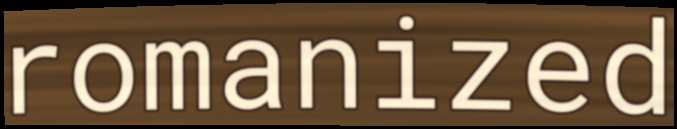
romanized